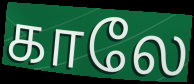
காலே